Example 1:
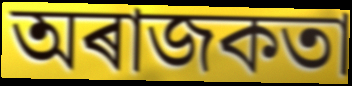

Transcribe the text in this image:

অৰাজকতা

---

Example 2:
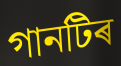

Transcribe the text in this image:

গানটিৰ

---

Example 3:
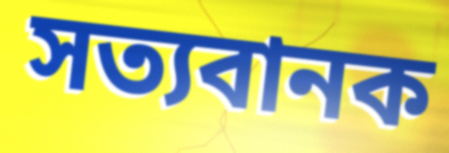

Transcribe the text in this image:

সত্যবানক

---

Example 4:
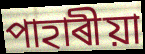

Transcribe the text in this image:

পাহাৰীয়া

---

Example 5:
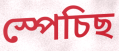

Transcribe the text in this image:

স্পেচিছ